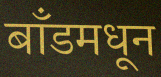
बाँडमधून